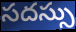
సదస్సు